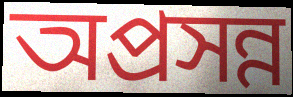
অপ্রসন্ন